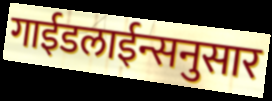
गाईडलाईन्सनुसार